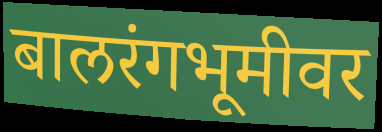
बालरंगभूमीवर